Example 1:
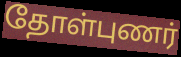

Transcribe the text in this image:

தோள்புணர்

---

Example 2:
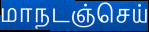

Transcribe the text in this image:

மாநடஞ்செய்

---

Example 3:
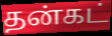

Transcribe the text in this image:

தன்கட்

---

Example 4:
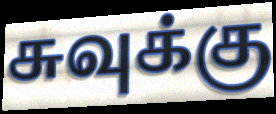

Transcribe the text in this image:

சுவுக்கு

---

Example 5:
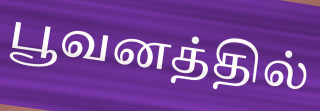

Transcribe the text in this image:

பூவனத்தில்